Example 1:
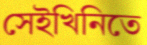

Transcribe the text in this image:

সেইখিনিতে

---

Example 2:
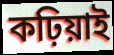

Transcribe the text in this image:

কঢ়িয়াই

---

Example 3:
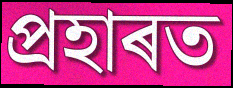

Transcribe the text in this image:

প্ৰহাৰত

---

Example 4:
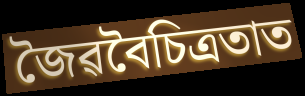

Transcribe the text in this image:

জৈৱবৈচিত্ৰতাত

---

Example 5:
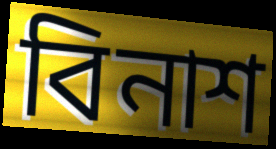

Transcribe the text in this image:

বিনাশ